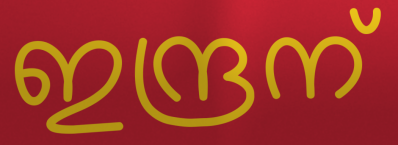
ഇന്ദ്രന്